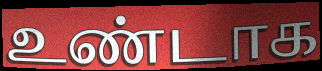
உண்டாக